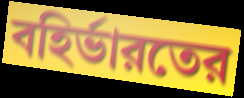
বহির্ভারতের